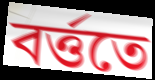
বর্ত্ততে